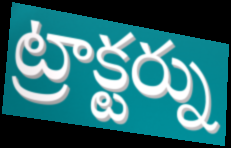
ట్రాక్టర్ను